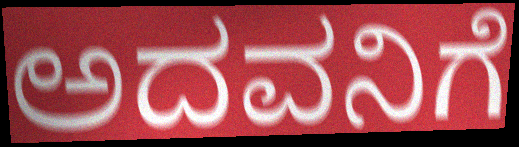
ಅದವನಿಗೆ